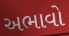
અભાવો